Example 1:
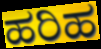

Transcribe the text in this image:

ಹರಿಹ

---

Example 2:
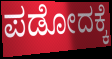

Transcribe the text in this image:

ಪಡೋದಕ್ಕೆ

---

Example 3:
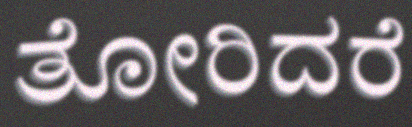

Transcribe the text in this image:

ತೋರಿದರೆ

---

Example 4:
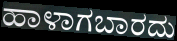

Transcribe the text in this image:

ಹಾಳಾಗಬಾರದು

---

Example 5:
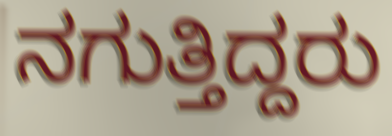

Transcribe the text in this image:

ನಗುತ್ತಿದ್ದರು